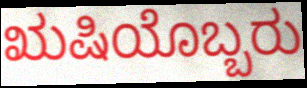
ಋಷಿಯೊಬ್ಬರು